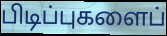
பிடிப்புகளைப்